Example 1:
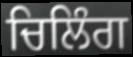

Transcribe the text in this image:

ਚਿਲਿੰਗ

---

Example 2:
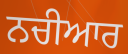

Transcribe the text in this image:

ਨਚੀਆਰ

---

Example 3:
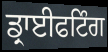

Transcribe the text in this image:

ਡ੍ਰਾਈਫਟਿੰਗ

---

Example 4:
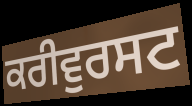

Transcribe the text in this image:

ਕਰੀਵੁਰਸਟ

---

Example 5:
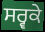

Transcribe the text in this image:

ਸਰ੍ਵਕੇ